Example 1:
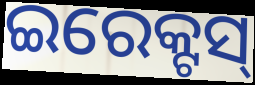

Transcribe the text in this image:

ଇରେକ୍ଟସ୍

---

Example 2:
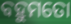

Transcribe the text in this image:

ବହୁମତୋ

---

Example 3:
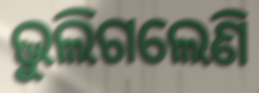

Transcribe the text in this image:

ଭୁଲିଗଲେଣି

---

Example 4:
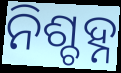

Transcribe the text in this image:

ନିଶ୍ଚହ୍ନ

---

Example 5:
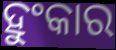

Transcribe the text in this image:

ହୁଂକାର